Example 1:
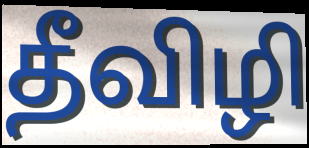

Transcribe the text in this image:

தீவிழி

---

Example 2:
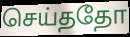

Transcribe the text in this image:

செய்ததோ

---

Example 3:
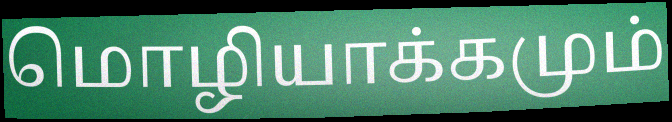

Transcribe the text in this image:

மொழியாக்கமும்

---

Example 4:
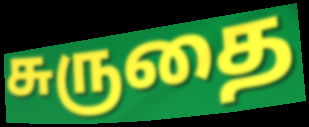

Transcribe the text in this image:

சுருதை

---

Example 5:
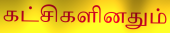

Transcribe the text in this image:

கட்சிகளினதும்